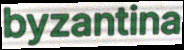
byzantina